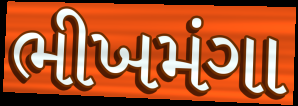
ભીખમંગા